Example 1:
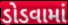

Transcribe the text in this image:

ડોડવામાં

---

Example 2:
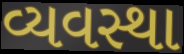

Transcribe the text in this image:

વ્યવસ્થા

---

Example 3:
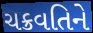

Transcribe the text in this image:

ચક્રવતિને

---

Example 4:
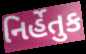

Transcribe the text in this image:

નિર્હેતુક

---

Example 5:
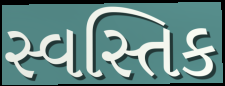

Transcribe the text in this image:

સ્વસ્તિક